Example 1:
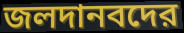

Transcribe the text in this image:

জলদানবদের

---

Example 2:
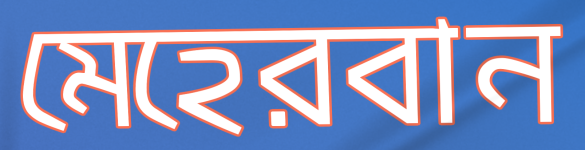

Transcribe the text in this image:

মেহেরবান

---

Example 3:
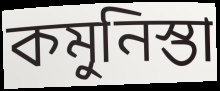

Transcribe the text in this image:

কমুনিস্তা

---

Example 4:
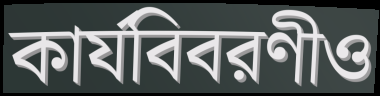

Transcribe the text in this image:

কার্যবিবরণীও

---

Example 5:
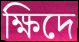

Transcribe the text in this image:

ক্ষিদে